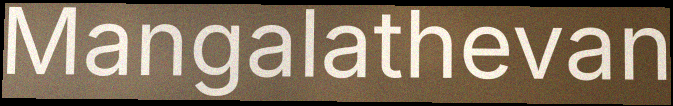
Mangalathevan